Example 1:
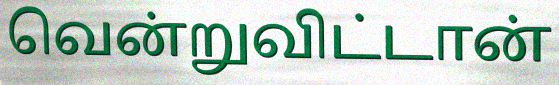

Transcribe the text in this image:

வென்றுவிட்டான்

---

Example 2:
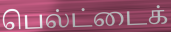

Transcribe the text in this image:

பெல்ட்டைக்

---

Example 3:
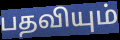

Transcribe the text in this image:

பதவியும்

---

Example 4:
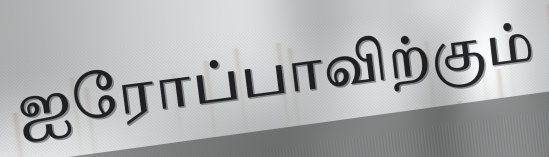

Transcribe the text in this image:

ஐரோப்பாவிற்கும்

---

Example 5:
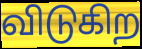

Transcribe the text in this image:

விடுகிற